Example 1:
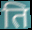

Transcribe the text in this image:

ति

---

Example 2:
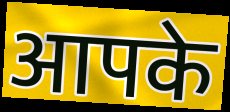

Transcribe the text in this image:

आपके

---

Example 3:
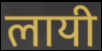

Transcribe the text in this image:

लायी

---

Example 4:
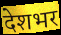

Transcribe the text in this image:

देशभर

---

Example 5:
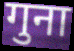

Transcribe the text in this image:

गुना